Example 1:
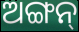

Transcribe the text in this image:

ଅଙ୍ଗନ୍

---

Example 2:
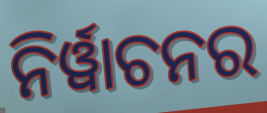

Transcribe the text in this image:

ନିର୍ୱାଚନର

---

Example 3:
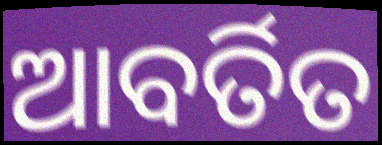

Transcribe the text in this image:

ଆବର୍ତିତ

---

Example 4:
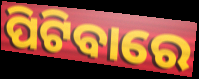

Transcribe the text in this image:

ପିଟିବାରେ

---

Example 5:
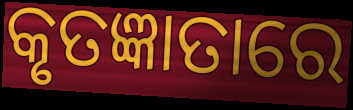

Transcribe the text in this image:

କୃତଜ୍ଞାତାରେ